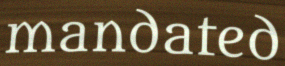
mandated